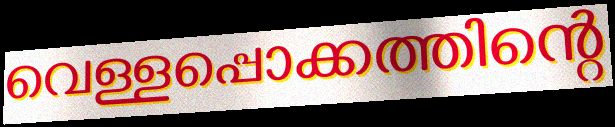
വെള്ളപ്പൊക്കത്തിന്റെ